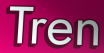
Tren